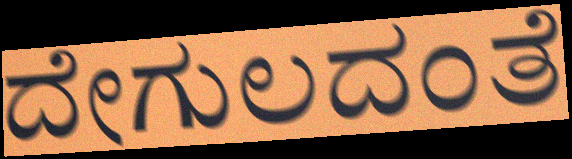
ದೇಗುಲದಂತೆ